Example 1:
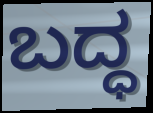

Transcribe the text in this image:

ಬದ್ಧ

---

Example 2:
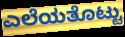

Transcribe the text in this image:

ಎಲೆಯತೊಟ್ಟು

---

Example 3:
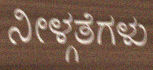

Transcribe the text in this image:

ನೀಳ್ಗತೆಗಳು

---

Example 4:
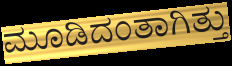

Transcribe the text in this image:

ಮೂಡಿದಂತಾಗಿತ್ತು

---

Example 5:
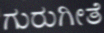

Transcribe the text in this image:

ಗುರುಗೀತೆ